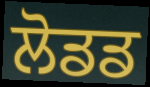
ਲੋਡਡ